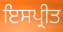
ਇਸਪ੍ਰੀਤ